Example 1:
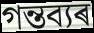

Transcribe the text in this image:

গন্তব্যৰ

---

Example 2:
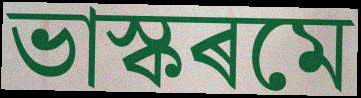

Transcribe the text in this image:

ভাস্কৰমে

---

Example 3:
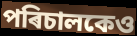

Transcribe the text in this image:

পৰিচালকেও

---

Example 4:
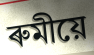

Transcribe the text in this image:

ৰুমীয়ে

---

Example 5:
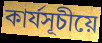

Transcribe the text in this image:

কাৰ্যসূচীয়ে